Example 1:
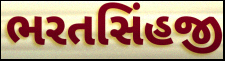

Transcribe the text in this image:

ભરતસિંહજી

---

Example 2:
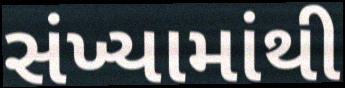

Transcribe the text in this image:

સંખ્યામાંથી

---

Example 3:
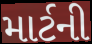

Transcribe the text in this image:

માર્ટની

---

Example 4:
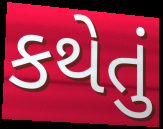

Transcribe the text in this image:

કથેતું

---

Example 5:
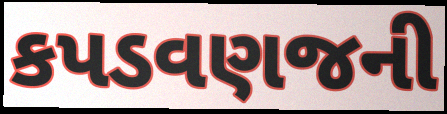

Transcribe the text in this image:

કપડવણજની